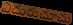
ఎదురుచూచు